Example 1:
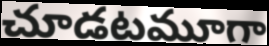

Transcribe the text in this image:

చూడటమూగా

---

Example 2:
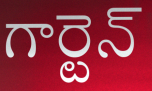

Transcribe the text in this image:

గార్టెన్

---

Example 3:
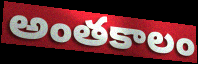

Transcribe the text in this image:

అంతకాలం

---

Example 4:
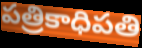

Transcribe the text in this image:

పత్రికాధిపతి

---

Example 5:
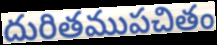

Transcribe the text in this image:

దురితముపచితం